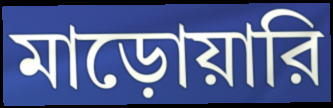
মাড়োয়ারি